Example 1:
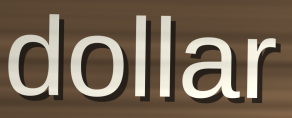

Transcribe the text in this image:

dollar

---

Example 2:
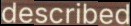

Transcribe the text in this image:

described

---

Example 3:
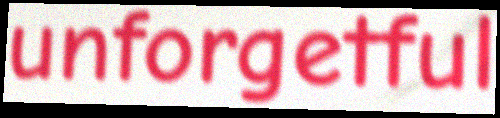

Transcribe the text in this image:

unforgetful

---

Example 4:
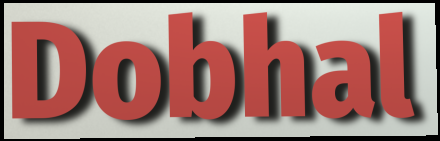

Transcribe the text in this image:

Dobhal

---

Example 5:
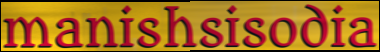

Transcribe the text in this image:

manishsisodia